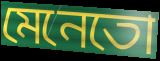
মেনেতো